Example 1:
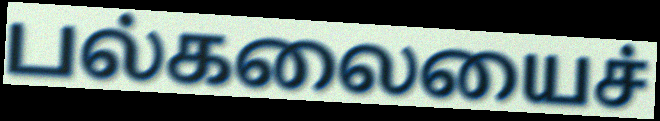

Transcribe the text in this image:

பல்கலையைச்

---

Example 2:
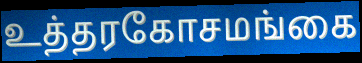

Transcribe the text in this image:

உத்தரகோசமங்கை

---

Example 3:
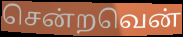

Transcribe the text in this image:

சென்றவென்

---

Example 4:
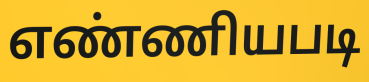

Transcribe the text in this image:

எண்ணியபடி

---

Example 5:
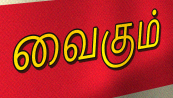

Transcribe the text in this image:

வைகும்